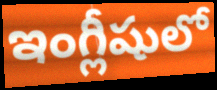
ఇంగ్లీషులో